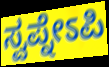
ಸ್ವಪ್ನೇಽಪಿ